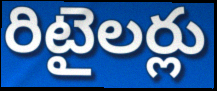
రిటైలర్లు